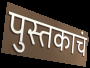
पुस्तकाचं